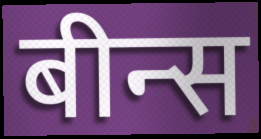
बीन्स